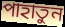
পাহাতুন